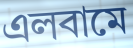
এলবামে